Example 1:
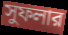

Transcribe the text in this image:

সুফলার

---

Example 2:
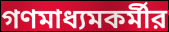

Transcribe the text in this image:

গণমাধ্যমকর্মীর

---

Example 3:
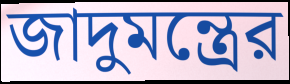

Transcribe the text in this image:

জাদুমন্ত্রের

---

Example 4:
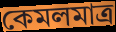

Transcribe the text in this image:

কেমলমাত্র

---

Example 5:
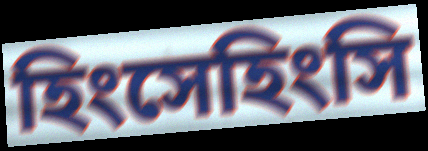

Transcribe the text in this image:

হিংসেহিংসি